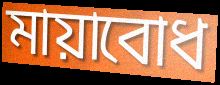
মায়াবোধ